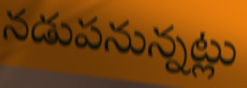
నడుపనున్నట్లు